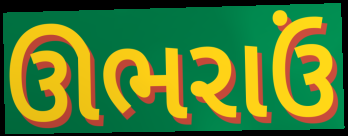
ઊભરાઉં